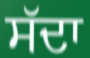
ਸੱਦਾ